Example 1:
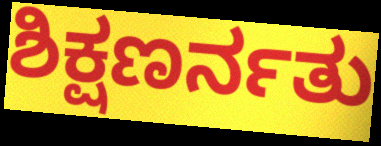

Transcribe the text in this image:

ಶಿಕ್ಷಣರ್ನತು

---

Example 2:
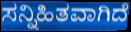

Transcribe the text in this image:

ಸನ್ನಿಹಿತವಾಗಿದೆ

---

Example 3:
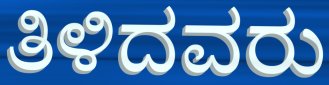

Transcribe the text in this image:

ತಿಳಿದವರು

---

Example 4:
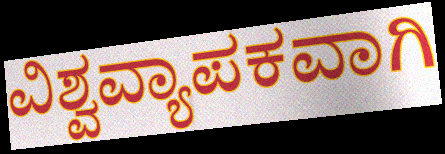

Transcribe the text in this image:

ವಿಶ್ವವ್ಯಾಪಕವಾಗಿ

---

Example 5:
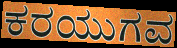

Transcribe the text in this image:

ಕರಯುಗವ